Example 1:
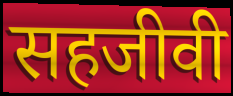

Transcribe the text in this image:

सहजीवी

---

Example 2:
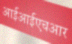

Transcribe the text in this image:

आईआईएचआर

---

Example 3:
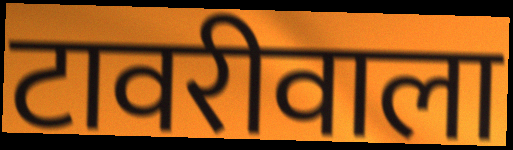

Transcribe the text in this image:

टावरीवाला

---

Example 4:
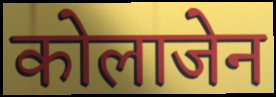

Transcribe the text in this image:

कोलाजेन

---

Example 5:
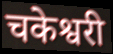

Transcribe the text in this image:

चकेश्वरी